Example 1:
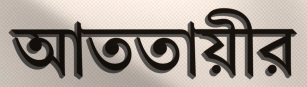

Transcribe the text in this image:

আততায়ীর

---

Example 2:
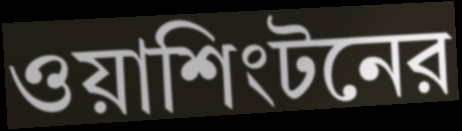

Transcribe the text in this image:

ওয়াশিংটনের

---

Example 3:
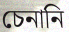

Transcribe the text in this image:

চেনানি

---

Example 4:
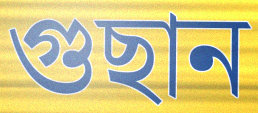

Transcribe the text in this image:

গুছান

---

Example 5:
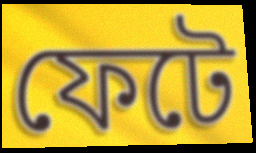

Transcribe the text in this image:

ফেটে